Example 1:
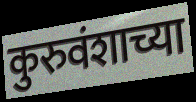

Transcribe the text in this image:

कुरुवंशाच्या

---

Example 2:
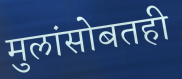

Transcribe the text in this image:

मुलांसोबतही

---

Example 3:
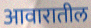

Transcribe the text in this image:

आवारातील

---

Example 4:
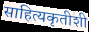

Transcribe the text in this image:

साहित्यकृतीशी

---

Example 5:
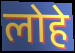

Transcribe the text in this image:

लोहे